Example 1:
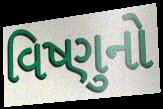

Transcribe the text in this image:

વિષ્ણુનો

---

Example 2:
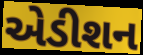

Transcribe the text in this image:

એડીશન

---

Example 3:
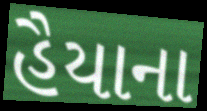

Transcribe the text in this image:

હૈયાના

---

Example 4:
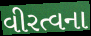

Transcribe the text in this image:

વીરત્વના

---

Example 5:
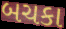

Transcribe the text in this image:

બચકા